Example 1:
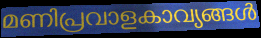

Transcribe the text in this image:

മണിപ്രവാളകാവ്യങ്ങൾ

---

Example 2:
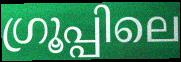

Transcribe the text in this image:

ഗ്രൂപ്പിലെ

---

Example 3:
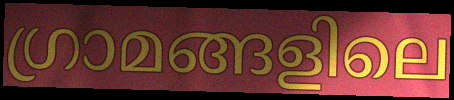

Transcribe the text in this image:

ഗ്രാമങ്ങളിലെ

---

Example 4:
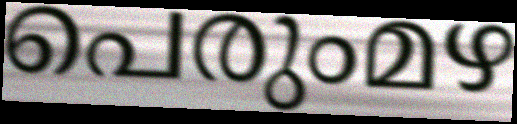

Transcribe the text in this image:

പെരുംമഴ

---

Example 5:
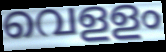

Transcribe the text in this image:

വെളളം